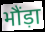
भौंड़ा